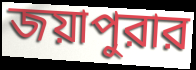
জয়াপুরার